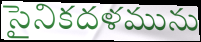
సైనికదళమును